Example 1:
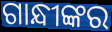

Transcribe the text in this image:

ଗାନ୍ଧୀଙ୍କର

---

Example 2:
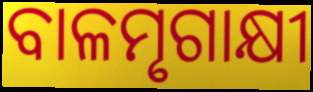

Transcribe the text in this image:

ବାଳମୃଗାକ୍ଷୀ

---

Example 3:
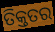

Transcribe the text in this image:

ତିକ୍ତତର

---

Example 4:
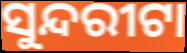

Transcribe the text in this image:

ସୁନ୍ଦରୀଟା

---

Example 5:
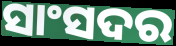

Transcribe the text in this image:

ସାଂସଦର